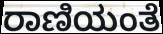
ರಾಣಿಯಂತೆ